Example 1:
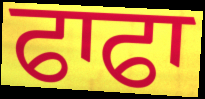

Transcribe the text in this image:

ਫਾਫਾ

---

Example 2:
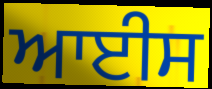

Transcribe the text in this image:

ਆਈਸ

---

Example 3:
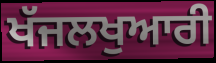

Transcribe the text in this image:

ਖੱਜਲਖੁਆਰੀ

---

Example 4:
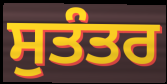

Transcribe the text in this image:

ਸੁਤੰਤਰ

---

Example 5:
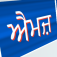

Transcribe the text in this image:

ਐਮਜ਼